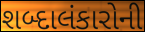
શબ્દાલંકારોની